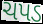
ચપડ